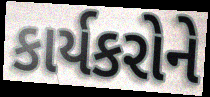
કાર્યકરોને